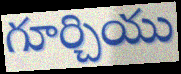
గూర్చియు